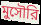
মুসৌরি